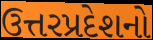
ઉત્તરપ્રદેશનો